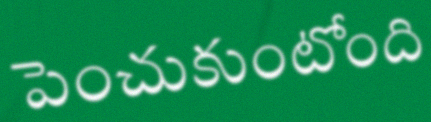
పెంచుకుంటోంది